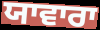
ਯਾਵਾਰਾ